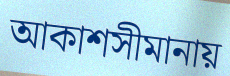
আকাশসীমানায়